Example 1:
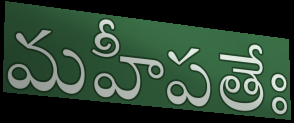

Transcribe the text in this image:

మహీపతేః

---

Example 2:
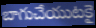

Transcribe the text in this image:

బాగుచేయుటకై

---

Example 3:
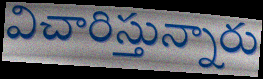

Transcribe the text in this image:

విచారిస్తున్నారు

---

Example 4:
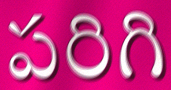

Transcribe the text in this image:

పరిగి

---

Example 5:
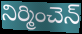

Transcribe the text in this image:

నిర్మించెన్